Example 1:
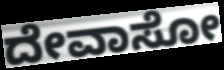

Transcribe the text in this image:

ದೇವಾಸೋ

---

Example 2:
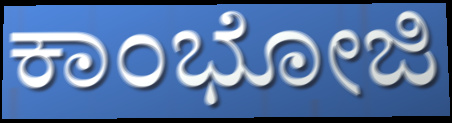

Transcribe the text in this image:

ಕಾಂಭೋಜಿ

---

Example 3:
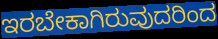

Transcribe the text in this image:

ಇರಬೇಕಾಗಿರುವುದರಿಂದ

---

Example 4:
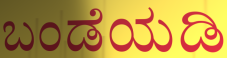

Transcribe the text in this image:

ಬಂಡೆಯಡಿ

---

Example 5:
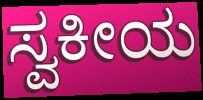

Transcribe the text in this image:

ಸ್ವಕೀಯ